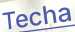
Techa